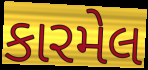
કારમેલ